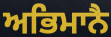
ਅਭਿਮਾਨੈ